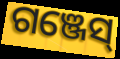
ଗଞ୍ଜେସ୍